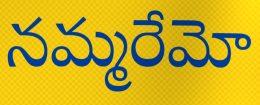
నమ్మరేమో